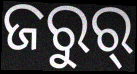
ଜରୁର୍